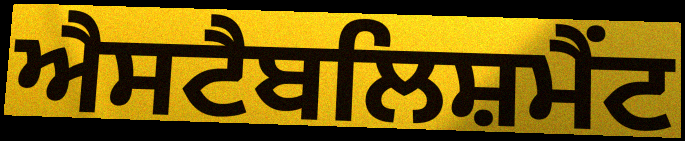
ਐਸਟੈਬਲਿਸ਼ਮੈਂਟ